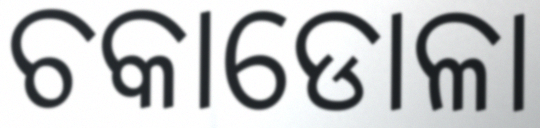
ଚକାଡୋଳା